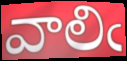
వాలిఁ